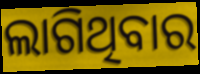
ଲାଗିଥିବାର